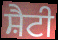
ਸ਼ੈਟੀ